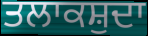
ਤਲਾਕਸ਼ੁਦਾ